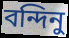
বন্দিনু